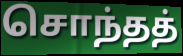
சொந்தத்